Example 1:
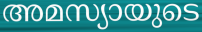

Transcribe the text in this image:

അമസ്യായുടെ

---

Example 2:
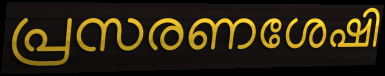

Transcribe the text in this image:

പ്രസരണശേഷി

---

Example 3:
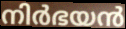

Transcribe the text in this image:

നിർഭയൻ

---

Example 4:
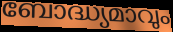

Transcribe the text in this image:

ബോദ്ധ്യമാവും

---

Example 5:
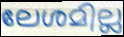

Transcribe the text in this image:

ലേശമില്ല